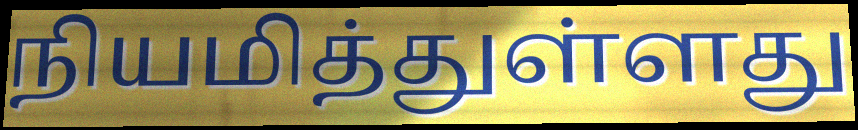
நியமித்துள்ளது